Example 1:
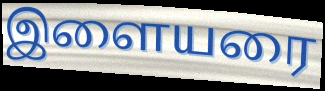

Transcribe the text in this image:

இளையரை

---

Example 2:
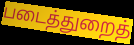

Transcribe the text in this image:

படைத்துறைத்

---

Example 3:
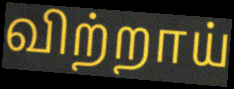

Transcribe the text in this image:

விற்றாய்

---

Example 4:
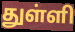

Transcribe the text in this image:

துள்ளி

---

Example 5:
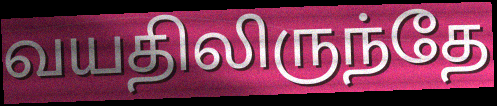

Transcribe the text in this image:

வயதிலிருந்தே